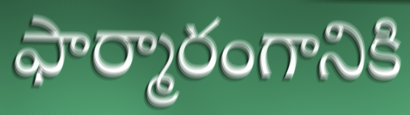
ఫార్మారంగానికి